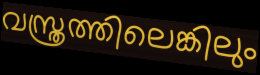
വസ്ത്രത്തിലെങ്കിലും